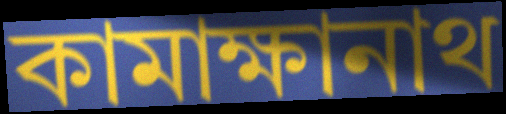
কামাক্ষানাথ